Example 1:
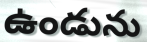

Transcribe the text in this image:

ఉండును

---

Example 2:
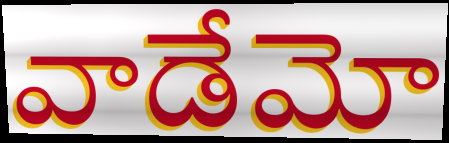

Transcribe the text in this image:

వాడేమో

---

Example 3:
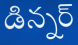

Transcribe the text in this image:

డిన్నర్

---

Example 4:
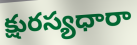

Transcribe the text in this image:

క్షురస్యధారా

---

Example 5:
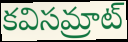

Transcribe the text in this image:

కవిసమ్రాట్